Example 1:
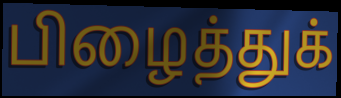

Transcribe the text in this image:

பிழைத்துக்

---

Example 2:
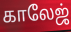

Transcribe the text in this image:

காலேஜ்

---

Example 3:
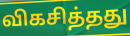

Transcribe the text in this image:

விகசித்தது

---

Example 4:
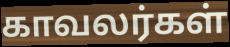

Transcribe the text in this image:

காவலர்கள்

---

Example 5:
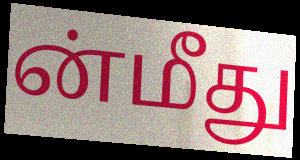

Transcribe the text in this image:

ன்மீது